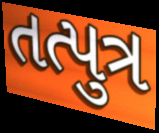
તત્પુત્ર